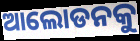
ଆଲୋଡନକୁ